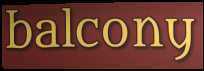
balcony